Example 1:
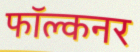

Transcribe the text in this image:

फॉल्कनर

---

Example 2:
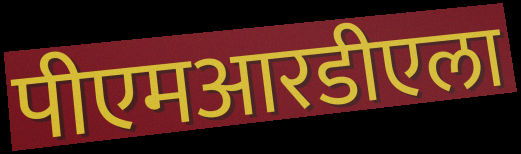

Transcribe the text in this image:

पीएमआरडीएला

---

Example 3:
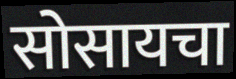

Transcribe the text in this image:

सोसायचा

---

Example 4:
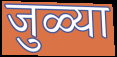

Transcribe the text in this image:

जुळ्या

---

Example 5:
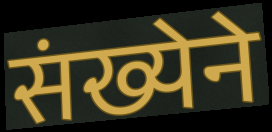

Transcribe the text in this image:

संख्येने